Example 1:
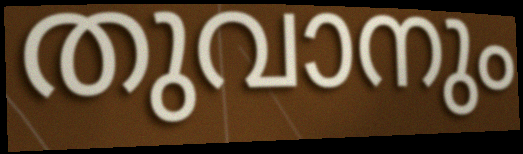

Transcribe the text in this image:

തുവാനും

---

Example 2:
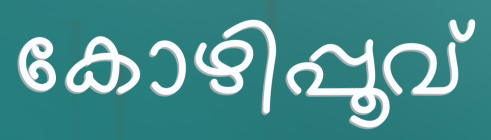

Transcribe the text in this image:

കോഴിപ്പൂവ്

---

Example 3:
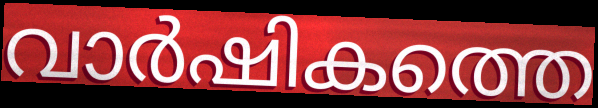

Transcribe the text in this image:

വാർഷികത്തെ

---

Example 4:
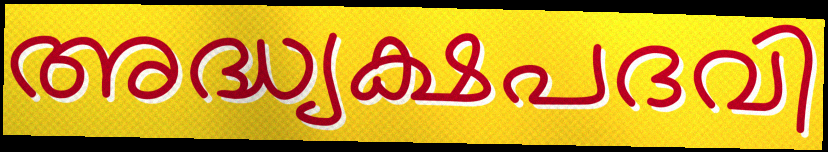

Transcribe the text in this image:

അദ്ധ്യക്ഷപദവി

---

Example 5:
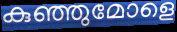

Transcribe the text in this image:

കുഞ്ഞുമോളെ